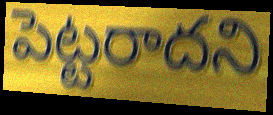
పెట్టరాదని